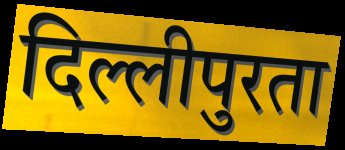
दिल्लीपुरता